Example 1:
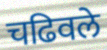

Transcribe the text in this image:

चढिवले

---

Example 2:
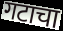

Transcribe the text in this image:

गटाचा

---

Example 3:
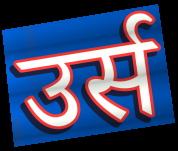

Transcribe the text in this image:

उर्स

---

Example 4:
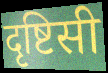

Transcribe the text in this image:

दृष्टिसी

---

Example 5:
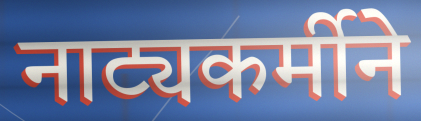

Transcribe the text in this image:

नाट्यकर्मीने